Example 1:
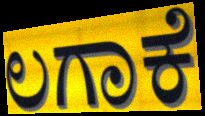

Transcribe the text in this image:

ಲಗಾಕೆ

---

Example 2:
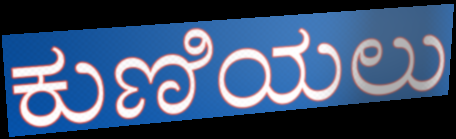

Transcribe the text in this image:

ಕುಣಿಯಲು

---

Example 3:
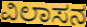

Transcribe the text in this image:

ವಿಲಾಸನ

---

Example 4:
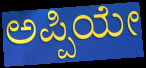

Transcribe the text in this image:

ಅಪ್ಪಿಯೇ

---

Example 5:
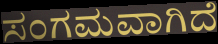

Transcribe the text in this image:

ಸಂಗಮವಾಗಿದೆ